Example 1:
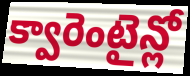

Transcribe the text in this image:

క్వారెంటైన్లో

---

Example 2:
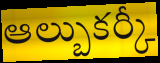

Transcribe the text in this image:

ఆల్బుకర్కీ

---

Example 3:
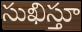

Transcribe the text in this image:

సుఖిస్తూ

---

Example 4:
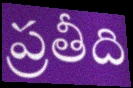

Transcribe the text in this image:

ప్రతీది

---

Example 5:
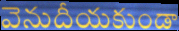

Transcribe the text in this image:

వెనుదీయకుండా